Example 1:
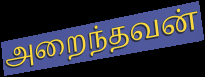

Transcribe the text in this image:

அறைந்தவன்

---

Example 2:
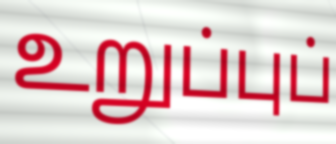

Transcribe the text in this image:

உறுப்புப்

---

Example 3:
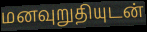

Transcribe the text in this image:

மனவுறுதியுடன்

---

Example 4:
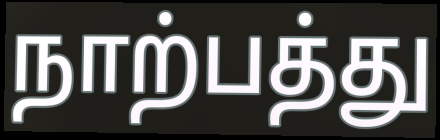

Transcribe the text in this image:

நாற்பத்து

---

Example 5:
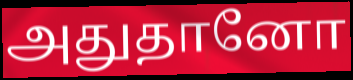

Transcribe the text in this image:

அதுதானோ